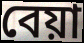
বেয়া